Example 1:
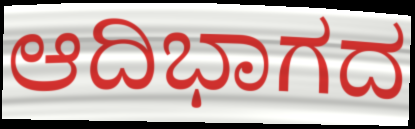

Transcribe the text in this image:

ಆದಿಭಾಗದ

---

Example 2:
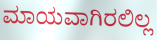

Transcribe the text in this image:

ಮಾಯವಾಗಿರಲಿಲ್ಲ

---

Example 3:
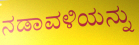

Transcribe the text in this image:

ನಡಾವಳಿಯನ್ನು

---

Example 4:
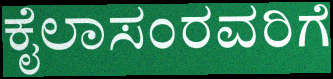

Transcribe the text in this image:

ಕೈಲಾಸಂರವರಿಗೆ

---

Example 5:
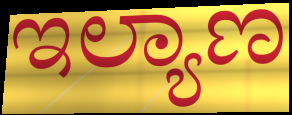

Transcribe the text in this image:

ಇಲ್ಯಾಣ